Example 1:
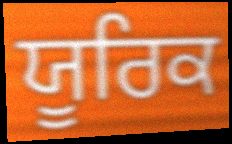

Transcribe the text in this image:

ਯੂਰਿਕ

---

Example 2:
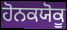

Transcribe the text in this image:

ਹੋਨਕਯੋਕੂ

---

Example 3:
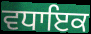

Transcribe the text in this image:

ਵਧਾਇਕ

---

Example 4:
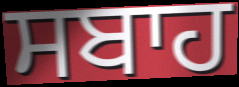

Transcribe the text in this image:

ਸਬਾਹ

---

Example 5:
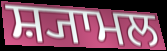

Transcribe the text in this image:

ਸ਼੍ਯਾਮਲ